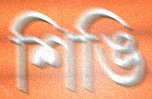
শিঙি